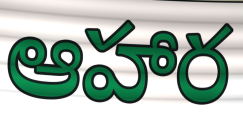
ఆహార